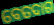
ବେତଦାଗ